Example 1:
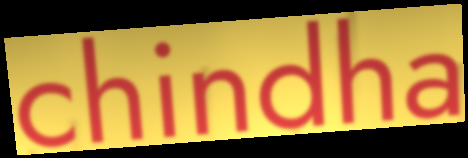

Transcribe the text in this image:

chindha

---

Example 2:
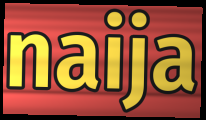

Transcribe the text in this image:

naija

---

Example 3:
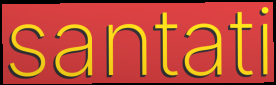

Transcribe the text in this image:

santati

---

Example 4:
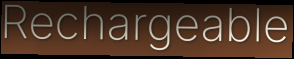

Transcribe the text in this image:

Rechargeable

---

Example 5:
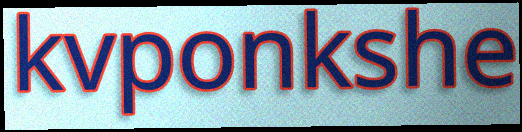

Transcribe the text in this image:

kvponkshe